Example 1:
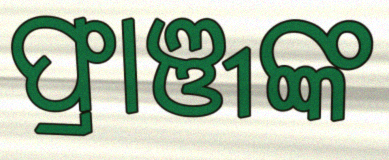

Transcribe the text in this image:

ଫ୍ରାଞ୍ଜଙ୍କ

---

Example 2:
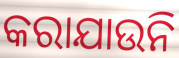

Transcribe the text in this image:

କରାଯାଉନି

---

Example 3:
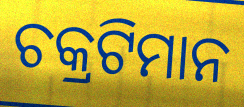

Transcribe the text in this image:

ଚକ୍ରଟିମାନ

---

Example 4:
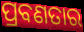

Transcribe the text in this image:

ପ୍ରବଣତାର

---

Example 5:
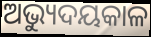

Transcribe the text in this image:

ଅଭ୍ୟୁଦୟକାଳ